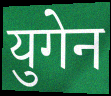
युगेन